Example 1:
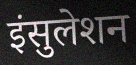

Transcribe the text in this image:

इंसुलेशन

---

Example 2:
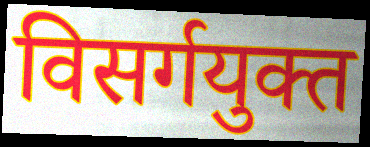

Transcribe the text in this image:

विसर्गयुक्त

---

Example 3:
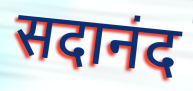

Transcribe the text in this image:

सदानंद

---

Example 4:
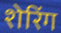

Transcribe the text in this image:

शेरिंग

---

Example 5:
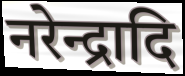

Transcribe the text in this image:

नरेन्द्रादि